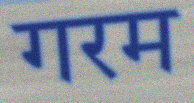
गरम